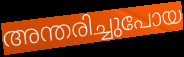
അന്തരിച്ചുപോയ